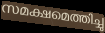
സമക്ഷമെത്തിച്ചു